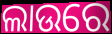
ଲାଉରେ